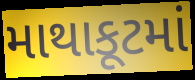
માથાકૂટમાં